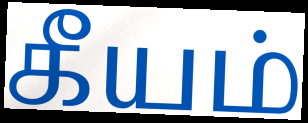
கீயம்